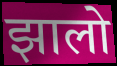
झालो